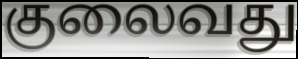
குலைவது